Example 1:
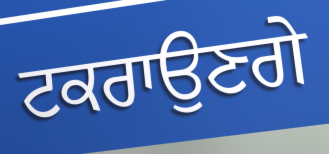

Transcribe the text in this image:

ਟਕਰਾਉਣਗੇ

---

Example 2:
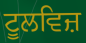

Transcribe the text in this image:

ਟੂਲਵਿਜ਼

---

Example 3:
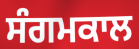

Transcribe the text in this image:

ਸੰਗਮਕਾਲ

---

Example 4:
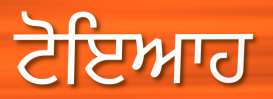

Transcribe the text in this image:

ਟੋਇਆਹ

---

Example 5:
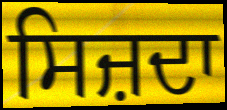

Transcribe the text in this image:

ਸਿਜ਼ਦਾ